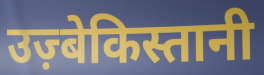
उज़्बेकिस्तानी